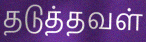
தடுத்தவள்